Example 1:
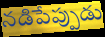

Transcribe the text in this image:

నడిపేప్పుడు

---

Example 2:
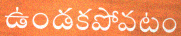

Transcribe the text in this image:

ఉండకపోవటం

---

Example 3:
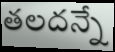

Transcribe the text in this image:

తలదన్నే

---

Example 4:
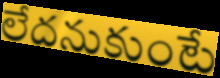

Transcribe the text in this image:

లేదనుకుంటే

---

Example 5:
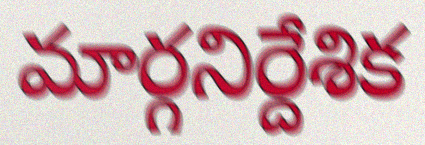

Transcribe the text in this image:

మార్గనిర్దేశిక